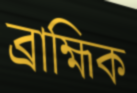
ব্ৰাহ্মিক